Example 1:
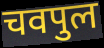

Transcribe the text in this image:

चवपुल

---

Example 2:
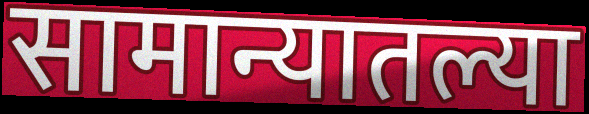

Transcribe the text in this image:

सामान्यातल्या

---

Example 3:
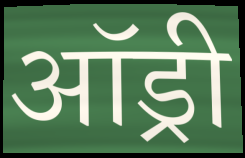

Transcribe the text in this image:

ऑड्री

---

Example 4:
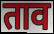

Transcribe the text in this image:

ताव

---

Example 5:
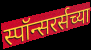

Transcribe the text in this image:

स्पॉन्सरर्सच्या